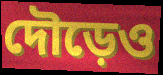
দৌড়েও